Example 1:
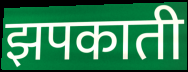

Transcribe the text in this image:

झपकाती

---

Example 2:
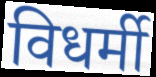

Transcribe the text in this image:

विधर्मी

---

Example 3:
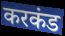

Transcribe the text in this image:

करकंड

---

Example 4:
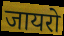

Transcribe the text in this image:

जायरो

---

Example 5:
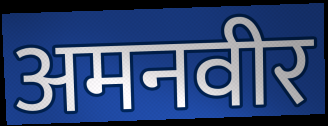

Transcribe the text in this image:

अमनवीर